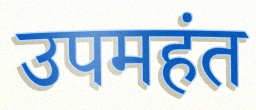
उपमहंत